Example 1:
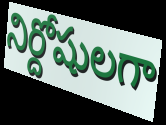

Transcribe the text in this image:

నిర్దోషులగా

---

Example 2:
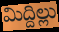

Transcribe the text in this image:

మిద్దిల్లు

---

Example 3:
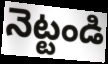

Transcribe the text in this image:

నెట్టండి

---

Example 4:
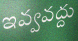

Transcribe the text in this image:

ఇవ్వవద్దు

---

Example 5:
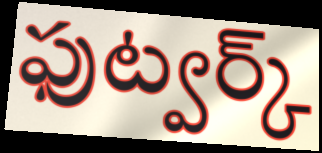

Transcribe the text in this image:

ఫుట్వర్క్